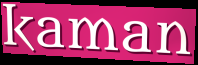
kaman